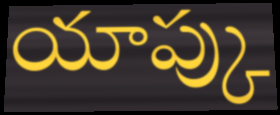
యాప్కు